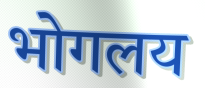
भोगलय